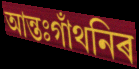
আন্তঃগাঁথনিৰ